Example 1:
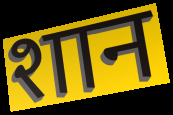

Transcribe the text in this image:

शान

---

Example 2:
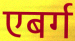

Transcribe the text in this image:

एबर्ग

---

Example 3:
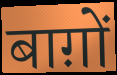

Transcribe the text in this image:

बाग़ों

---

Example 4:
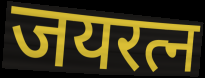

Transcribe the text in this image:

जयरत्न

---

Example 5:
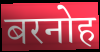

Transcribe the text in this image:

बरनोह